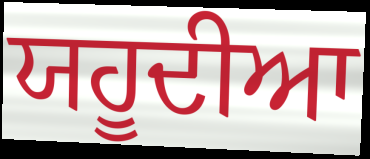
ਯਹੂਦੀਆ